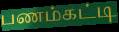
பணம்கட்டி